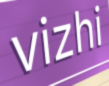
vizhi